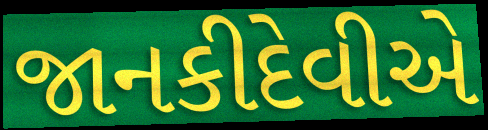
જાનકીદેવીએ